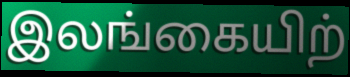
இலங்கையிற்